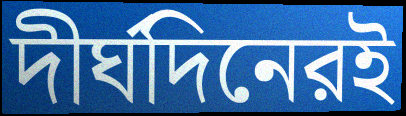
দীর্ঘদিনেরই